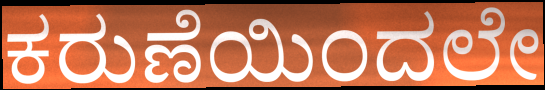
ಕರುಣೆಯಿಂದಲೇ